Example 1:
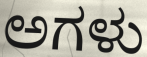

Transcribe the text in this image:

ಅಗಳು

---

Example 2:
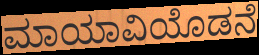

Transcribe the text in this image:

ಮಾಯಾವಿಯೊಡನೆ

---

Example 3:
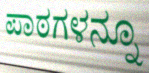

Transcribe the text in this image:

ಪಾಠಗಳನ್ನೂ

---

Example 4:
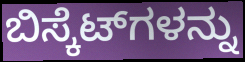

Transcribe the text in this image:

ಬಿಸ್ಕೆಟ್‌ಗಳನ್ನು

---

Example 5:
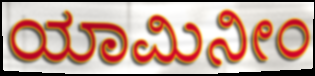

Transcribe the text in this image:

ಯಾಮಿನೀಂ